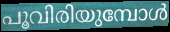
പൂവിരിയുമ്പോൾ